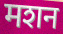
मशन